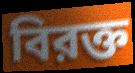
বিরক্ত